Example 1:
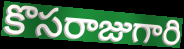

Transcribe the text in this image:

కొసరాజుగారి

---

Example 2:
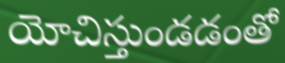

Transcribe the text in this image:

యోచిస్తుండడంతో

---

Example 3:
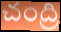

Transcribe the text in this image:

చంద్రి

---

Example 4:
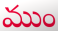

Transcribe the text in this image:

ముం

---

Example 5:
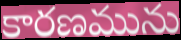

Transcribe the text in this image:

కారణమును